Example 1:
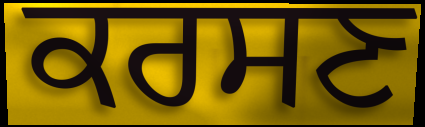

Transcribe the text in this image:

ਕਰਸਣ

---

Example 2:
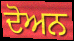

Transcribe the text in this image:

ਦੋਅਨ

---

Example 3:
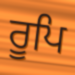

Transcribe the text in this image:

ਰੂਪਿ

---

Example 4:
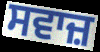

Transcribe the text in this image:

ਸਵਾਜ਼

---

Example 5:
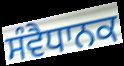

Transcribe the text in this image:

ਸੰਵੈਧਾਨਕ